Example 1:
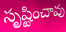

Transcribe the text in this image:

సృష్టించావు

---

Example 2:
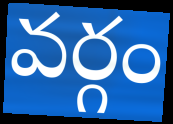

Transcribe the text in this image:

వర్గం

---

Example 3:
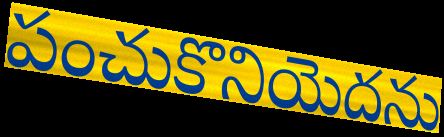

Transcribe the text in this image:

పంచుకొనియెదను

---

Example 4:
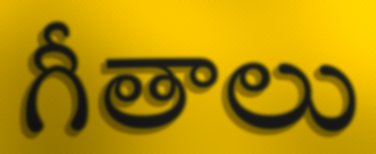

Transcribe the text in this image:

గీతాలు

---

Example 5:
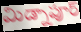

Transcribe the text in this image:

మిడ్నాపూర్